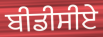
ਬੀਡੀਸੀਏ